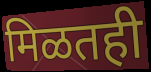
मिळतही